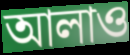
আলাও